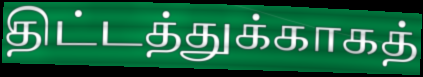
திட்டத்துக்காகத்